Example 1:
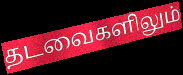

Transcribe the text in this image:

தடவைகளிலும்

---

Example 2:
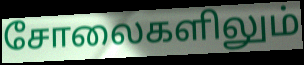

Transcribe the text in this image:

சோலைகளிலும்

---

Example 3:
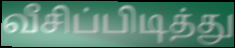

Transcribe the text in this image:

வீசிப்பிடித்து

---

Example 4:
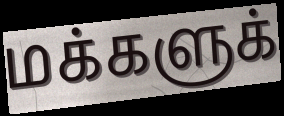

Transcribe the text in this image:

மக்களுக்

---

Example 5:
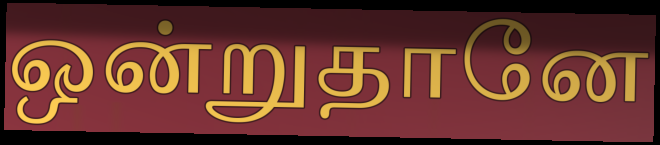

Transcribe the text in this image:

ஒன்றுதானே